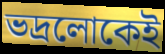
ভদ্রলোকেই